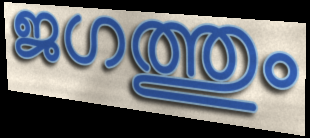
ജഗത്തും